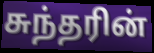
சுந்தரின்